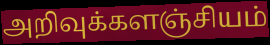
அறிவுக்களஞ்சியம்